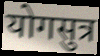
योगसुत्र